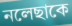
নলেছাকে